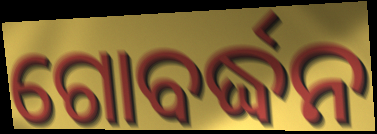
ଗୋବର୍ଦ୍ଧନ